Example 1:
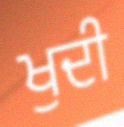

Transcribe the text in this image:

ਖੁਦੀ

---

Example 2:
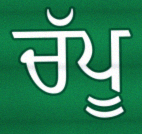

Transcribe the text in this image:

ਚੱਪੂ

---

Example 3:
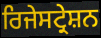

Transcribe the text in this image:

ਰਿਜੇਸਟ੍ਰੇਸ਼ਨ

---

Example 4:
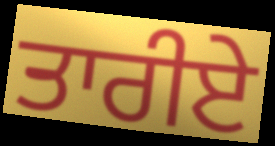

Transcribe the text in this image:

ਤਾਰੀਏ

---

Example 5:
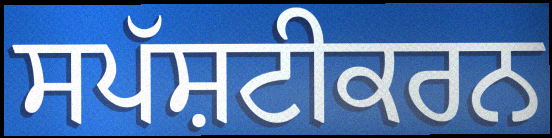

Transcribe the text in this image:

ਸਪੱਸ਼ਟੀਕਰਨ